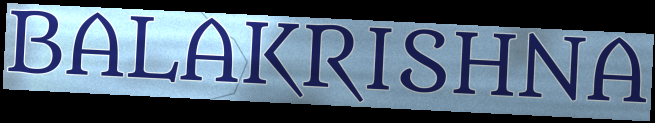
BALAKRISHNA